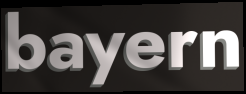
bayern